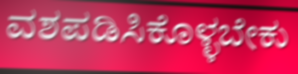
ವಶಪಡಿಸಿಕೊಳ್ಳಬೇಕು